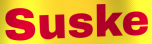
Suske